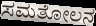
ಸಮತೋಲನ